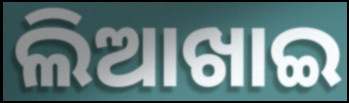
ଲିଆଖାଇ